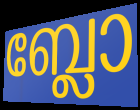
ബ്ലോ